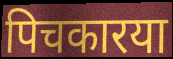
पिचकारया